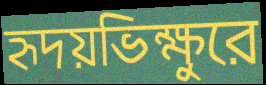
হৃদয়ভিক্ষুরে